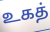
உகத்